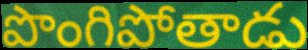
పొంగిపోతాడు